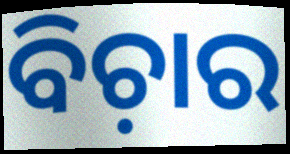
ବିଚ଼ାର